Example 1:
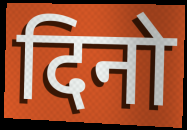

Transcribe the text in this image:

दिनो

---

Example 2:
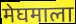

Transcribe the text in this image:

मेघमाला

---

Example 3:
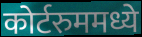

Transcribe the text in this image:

कोर्टरुममध्ये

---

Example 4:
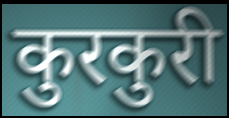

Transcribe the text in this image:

कुरकुरी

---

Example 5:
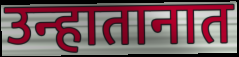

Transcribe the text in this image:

उन्हातानात